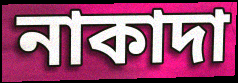
নাকাদা